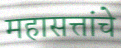
महासत्तांचे